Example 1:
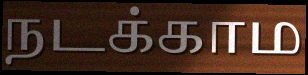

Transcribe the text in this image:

நடக்காம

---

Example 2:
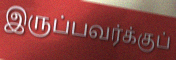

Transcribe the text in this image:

இருப்பவர்க்குப்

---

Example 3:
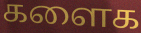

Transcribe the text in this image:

களைக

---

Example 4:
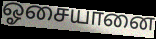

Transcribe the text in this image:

ஓசையானை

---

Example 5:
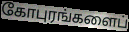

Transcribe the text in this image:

கோபுரங்களைப்